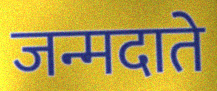
जन्मदाते